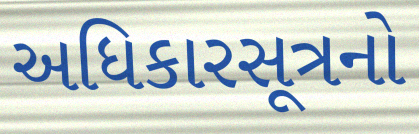
અધિકારસૂત્રનો